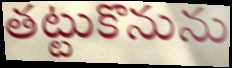
తట్టుకొనును